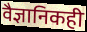
वैज्ञानिकही